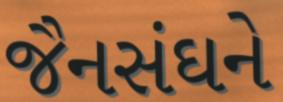
જૈનસંઘને